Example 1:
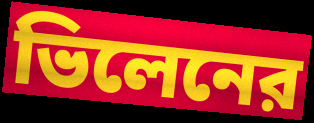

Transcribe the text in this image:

ভিলেনের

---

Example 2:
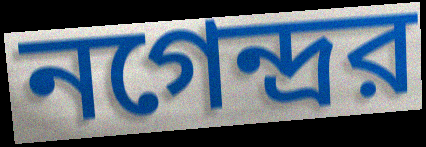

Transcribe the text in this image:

নগেন্দ্রর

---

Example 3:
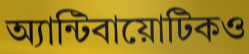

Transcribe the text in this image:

অ্যান্টিবায়োটিকও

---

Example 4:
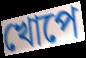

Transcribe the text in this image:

খোপে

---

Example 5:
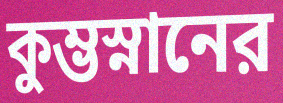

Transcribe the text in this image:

কুম্ভস্নানের